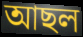
আছল